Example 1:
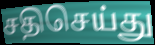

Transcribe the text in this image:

சதிசெய்து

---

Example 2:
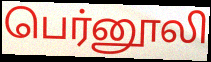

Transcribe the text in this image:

பெர்னூலி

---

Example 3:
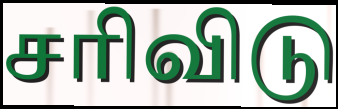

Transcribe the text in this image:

சரிவிடு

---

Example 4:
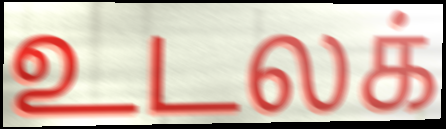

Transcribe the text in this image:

உடலக்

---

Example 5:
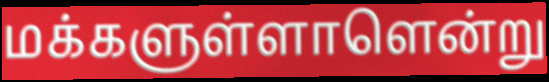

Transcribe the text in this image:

மக்களுள்ளாளென்று